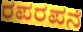
ರಪರಪನೆ